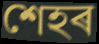
শেহৰ